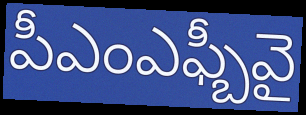
పీఎంఎఫ్బీవై